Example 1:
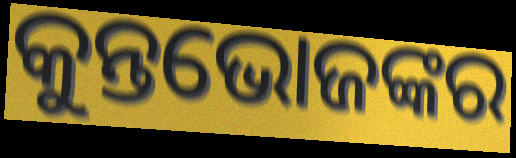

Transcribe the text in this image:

କୁନ୍ତଭୋଜଙ୍କର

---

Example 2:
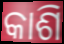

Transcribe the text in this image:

କାଶି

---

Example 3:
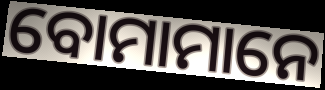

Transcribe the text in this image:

ବୋମାମାନେ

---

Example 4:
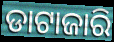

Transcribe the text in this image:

ଡାଟାଜାରି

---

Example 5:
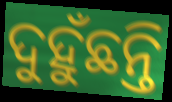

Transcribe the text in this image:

ଦୁହୁଁଛନ୍ତି